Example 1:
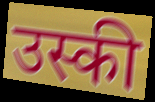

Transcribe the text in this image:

उस्‍की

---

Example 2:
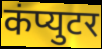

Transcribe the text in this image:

कंप्युटर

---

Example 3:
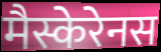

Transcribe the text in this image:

मैस्केरेनस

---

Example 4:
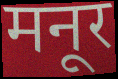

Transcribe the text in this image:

मनूर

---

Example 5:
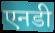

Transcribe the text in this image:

एनडी